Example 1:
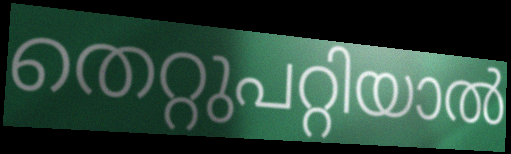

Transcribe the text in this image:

തെറ്റുപറ്റിയാൽ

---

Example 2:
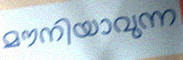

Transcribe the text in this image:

മൗനിയാവുന്ന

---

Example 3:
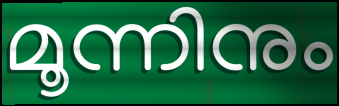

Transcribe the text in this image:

മൂന്നിനും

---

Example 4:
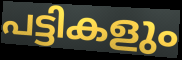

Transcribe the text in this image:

പട്ടികളും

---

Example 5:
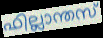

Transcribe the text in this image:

ഫില്ലാന്തസ്